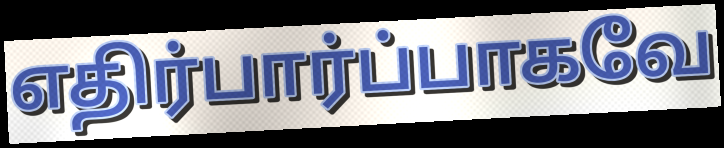
எதிர்பார்ப்பாகவே